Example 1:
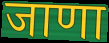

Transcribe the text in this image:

जाणा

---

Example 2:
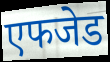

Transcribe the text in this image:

एफजेड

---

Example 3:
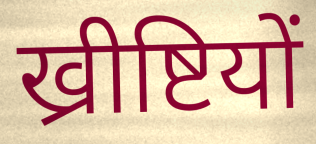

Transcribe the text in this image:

ख्रीष्टियों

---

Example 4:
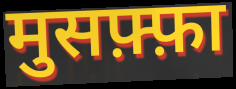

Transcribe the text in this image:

मुसफ़्फ़ा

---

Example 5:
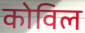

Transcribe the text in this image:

कोविल